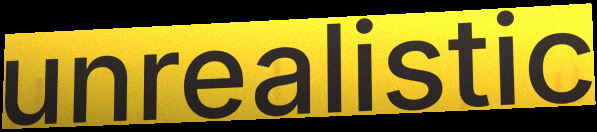
unrealistic